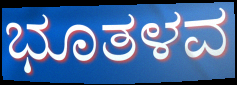
ಭೂತಳವ